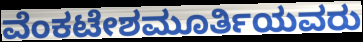
ವೆಂಕಟೇಶಮೂರ್ತಿಯವರು